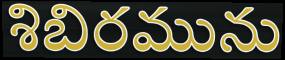
శిబిరమును